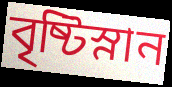
বৃষ্টিস্নান